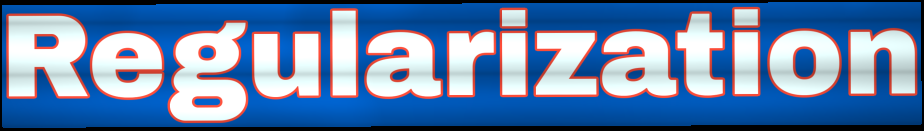
Regularization